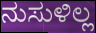
ನುಸುಳಿಲ್ಲ